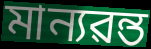
মান্যৱন্ত